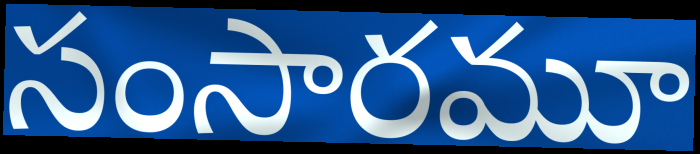
సంసారమూ